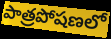
పాత్రపోషణలో